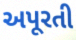
અપૂરતી